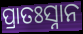
ପ୍ରାତଃସ୍ନାନ